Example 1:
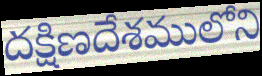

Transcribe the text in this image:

దక్షిణదేశములోని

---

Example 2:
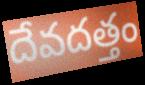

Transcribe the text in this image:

దేవదత్తం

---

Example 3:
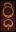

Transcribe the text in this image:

ర్ధి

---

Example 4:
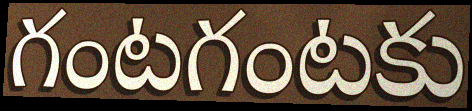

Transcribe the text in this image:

గంటగంటకు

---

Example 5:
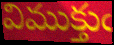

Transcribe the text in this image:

విముక్తుఁ